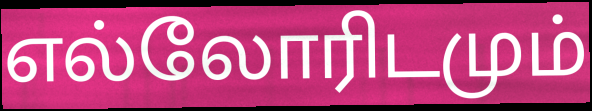
எல்லோரிடமும்